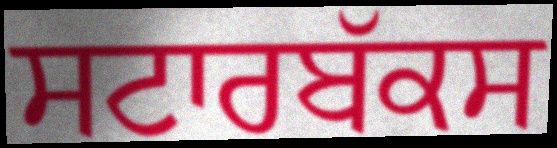
ਸਟਾਰਬੱਕਸ